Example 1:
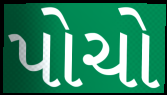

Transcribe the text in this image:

પોચો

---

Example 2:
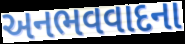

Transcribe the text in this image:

અનભવવાદના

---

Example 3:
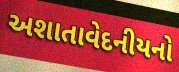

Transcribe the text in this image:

અશાતાવેદનીયનો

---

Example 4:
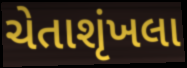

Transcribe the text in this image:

ચેતાશૃંખલા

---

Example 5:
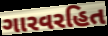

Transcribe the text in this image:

ગારવરહિત